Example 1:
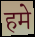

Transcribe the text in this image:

हमे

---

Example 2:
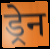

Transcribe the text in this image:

ड्रेन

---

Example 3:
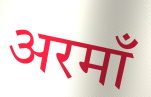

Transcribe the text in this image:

अरमाँ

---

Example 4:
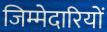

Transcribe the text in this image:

जिम्मेदारियों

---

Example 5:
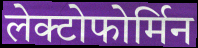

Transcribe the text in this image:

लेक्टोफोर्मिन